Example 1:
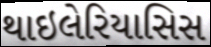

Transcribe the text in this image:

થાઇલેરિયાસિસ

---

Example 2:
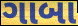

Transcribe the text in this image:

ગાબા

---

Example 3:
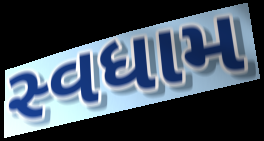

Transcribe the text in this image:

સ્વધામ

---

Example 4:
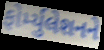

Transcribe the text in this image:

ફોર્મ્યુલેશનને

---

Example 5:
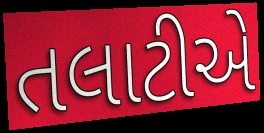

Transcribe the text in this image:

તલાટીએ